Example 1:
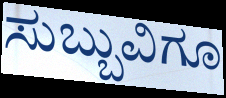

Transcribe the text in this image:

ಸುಬ್ಬುವಿಗೂ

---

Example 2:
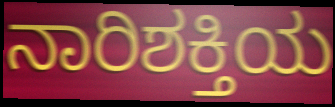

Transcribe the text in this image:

ನಾರಿಶಕ್ತಿಯ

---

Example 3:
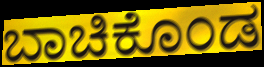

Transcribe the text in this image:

ಬಾಚಿಕೊಂಡ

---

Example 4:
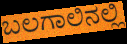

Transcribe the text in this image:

ಬಲಗಾಲಿನಲ್ಲಿ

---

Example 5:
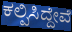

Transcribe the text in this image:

ಕಲ್ಪಿಸಿದ್ದೇವೆ